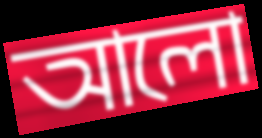
আলো